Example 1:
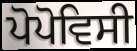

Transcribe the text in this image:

ਪੋਪੋਵਿਸੀ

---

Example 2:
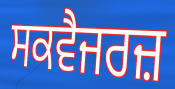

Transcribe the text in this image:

ਸਕਵੈਜਰਜ਼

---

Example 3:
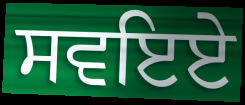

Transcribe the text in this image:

ਸਵਇਏ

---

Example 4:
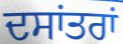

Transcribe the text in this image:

ਦਸਾਂਤਰਾਂ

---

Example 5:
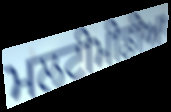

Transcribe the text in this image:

ਮਲਟੀਮੀਡੀਆ